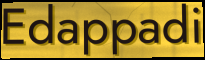
Edappadi